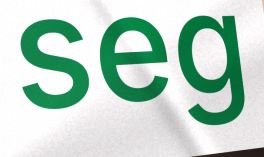
seg